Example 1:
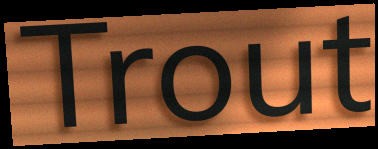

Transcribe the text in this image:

Trout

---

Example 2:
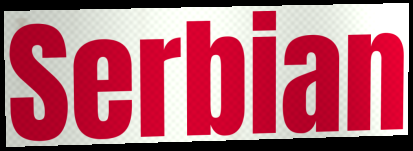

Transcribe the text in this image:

Serbian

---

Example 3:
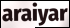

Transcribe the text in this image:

araiyar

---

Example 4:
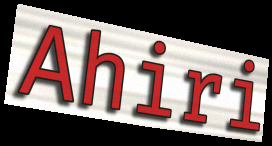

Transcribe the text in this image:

Ahiri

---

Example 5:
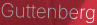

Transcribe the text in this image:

Guttenberg